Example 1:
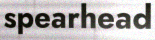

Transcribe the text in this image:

spearhead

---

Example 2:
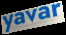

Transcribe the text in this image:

yavar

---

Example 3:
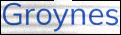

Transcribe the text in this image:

Groynes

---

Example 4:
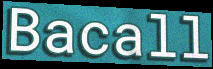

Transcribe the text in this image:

Bacall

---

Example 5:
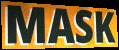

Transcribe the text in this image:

MASK